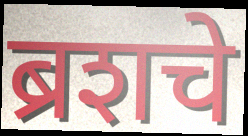
ब्रशचे